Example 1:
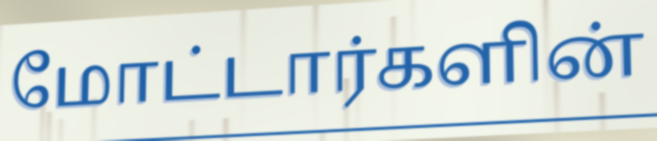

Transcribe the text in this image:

மோட்டார்களின்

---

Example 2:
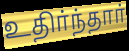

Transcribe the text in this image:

உதிர்ந்தார்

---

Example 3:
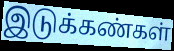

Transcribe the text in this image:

இடுக்கண்கள்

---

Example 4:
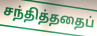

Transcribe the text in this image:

சந்தித்ததைப்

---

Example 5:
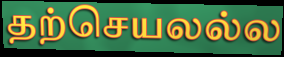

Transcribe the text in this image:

தற்செயலல்ல